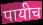
पायीच